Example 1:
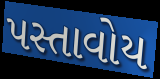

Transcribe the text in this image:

પસ્તાવોય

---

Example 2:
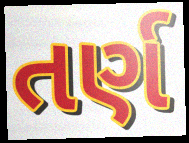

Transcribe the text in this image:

તર્ણ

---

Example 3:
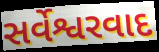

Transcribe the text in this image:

સર્વેશ્વરવાદ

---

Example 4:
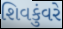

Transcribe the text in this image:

શિવકુંવરે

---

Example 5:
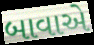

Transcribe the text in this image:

બાવાએ